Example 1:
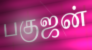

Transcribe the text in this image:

பகுஜன்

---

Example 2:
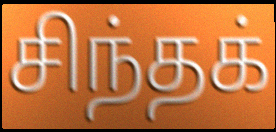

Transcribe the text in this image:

சிந்தக்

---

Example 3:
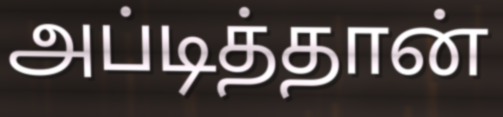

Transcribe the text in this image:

அப்டித்தான்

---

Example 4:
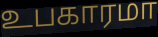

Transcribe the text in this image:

உபகாரமா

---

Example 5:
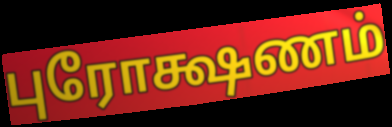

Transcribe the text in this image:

புரோக்ஷணம்